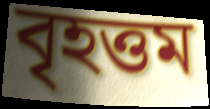
বৃহত্তম